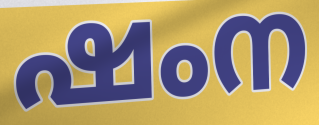
ഷംന